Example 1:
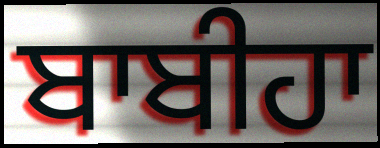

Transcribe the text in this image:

ਬਾਬੀਹਾ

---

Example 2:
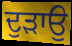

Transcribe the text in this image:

ਦੁੜਾਉ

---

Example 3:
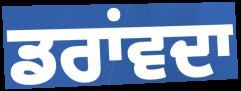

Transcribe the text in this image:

ਡਰਾਂਵਦਾ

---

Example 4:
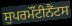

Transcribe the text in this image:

ਸੁਪਰਮੌਂਟੀਨੈਂਟਸ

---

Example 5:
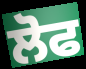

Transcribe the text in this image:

ਲੋਫ